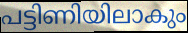
പട്ടിണിയിലാകും